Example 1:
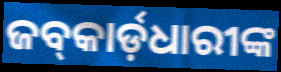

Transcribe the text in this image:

ଜବ୍‍କାର୍ଡ଼ଧାରୀଙ୍କ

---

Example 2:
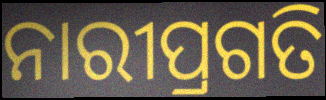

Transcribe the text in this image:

ନାରୀପ୍ରଗତି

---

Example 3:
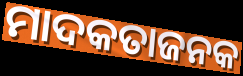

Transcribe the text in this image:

ମାଦକତାଜନକ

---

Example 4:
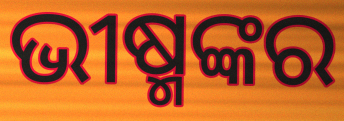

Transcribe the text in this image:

ଭୀଷ୍ମଙ୍କର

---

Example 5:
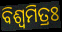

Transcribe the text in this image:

ବିଶ୍ବମିତ୍ରଃ